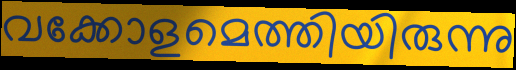
വക്കോളമെത്തിയിരുന്നു